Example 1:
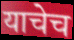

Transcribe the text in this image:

याचेच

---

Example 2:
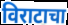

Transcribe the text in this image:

विराटाचा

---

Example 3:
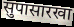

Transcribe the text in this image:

सुपासारखा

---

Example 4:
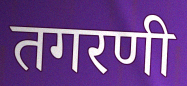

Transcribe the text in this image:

तगरणी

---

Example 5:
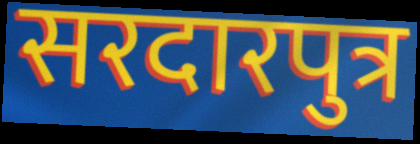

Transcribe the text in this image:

सरदारपुत्र